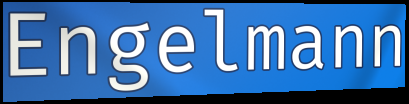
Engelmann